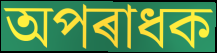
অপৰাধক